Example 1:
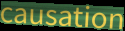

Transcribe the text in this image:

causation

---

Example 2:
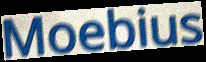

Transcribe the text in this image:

Moebius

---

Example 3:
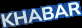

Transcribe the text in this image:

KHABAR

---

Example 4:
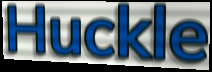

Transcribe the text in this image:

Huckle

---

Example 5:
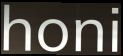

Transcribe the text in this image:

honi